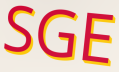
SGE